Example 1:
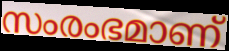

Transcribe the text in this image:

സംരംഭമാണ്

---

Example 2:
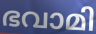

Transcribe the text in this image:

ഭവാമി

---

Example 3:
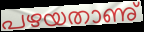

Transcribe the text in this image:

പഴയതാണു്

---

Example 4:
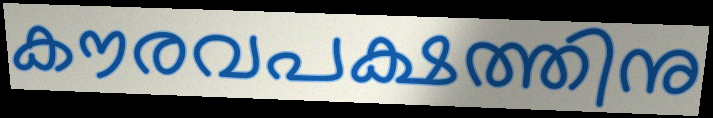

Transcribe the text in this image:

കൗരവപക്ഷത്തിനു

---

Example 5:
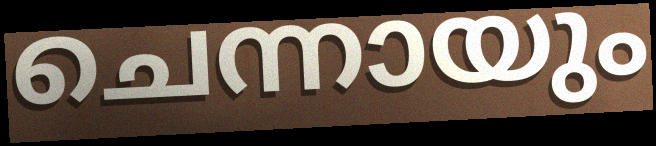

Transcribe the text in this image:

ചെന്നായും